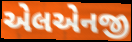
એલએનજી